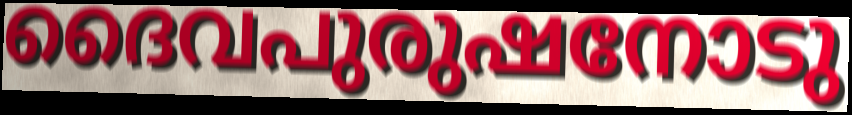
ദൈവപുരുഷനോടു